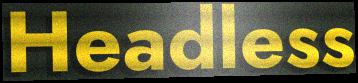
Headless